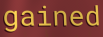
gained